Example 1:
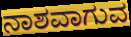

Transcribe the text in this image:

ನಾಶವಾಗುವ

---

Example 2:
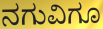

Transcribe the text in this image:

ನಗುವಿಗೂ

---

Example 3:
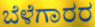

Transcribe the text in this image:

ಬೆಳೆಗಾರರ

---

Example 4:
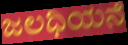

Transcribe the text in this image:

ಜಲಧಿಯನೆ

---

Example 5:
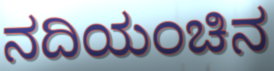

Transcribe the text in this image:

ನದಿಯಂಚಿನ